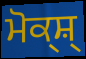
ਮੋਕ੍ਸ਼੍